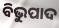
ବିଭୁପାଦ